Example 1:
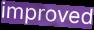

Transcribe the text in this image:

improved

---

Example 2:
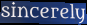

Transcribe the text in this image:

sincerely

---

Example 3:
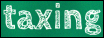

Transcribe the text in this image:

taxing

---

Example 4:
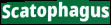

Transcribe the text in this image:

Scatophagus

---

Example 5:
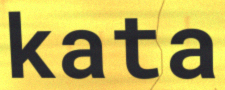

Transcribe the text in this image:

kata